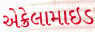
એક્રેલામાઇડ